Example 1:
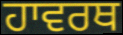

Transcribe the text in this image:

ਹਾਵਰਥ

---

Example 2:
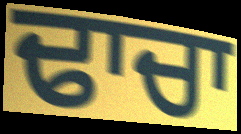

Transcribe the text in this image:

ਢਾਚਾ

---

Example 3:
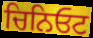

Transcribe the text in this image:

ਚਿਨਿਓਟ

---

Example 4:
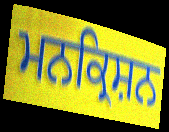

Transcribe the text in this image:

ਮਨਕ੍ਰਿਸ਼ਨ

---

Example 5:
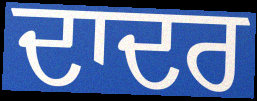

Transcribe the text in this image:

ਦਾਦਰ